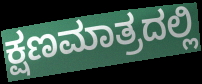
ಕ್ಷಣಮಾತ್ರದಲ್ಲಿ